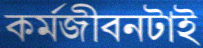
কর্মজীবনটাই